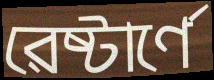
ৱেষ্টাৰ্ণে